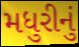
મધુરીનું